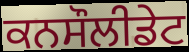
ਕਨਸੌਲੀਡੇਟ